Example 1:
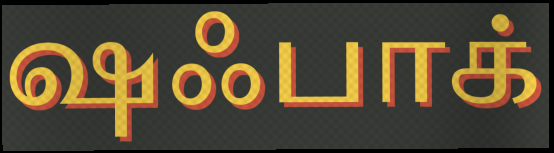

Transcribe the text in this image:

ஷஃபாக்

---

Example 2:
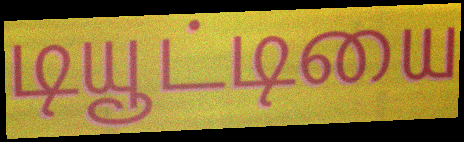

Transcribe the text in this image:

டியூட்டியை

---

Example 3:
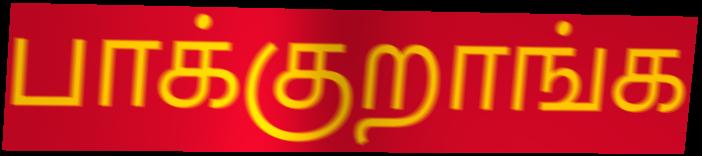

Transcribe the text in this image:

பாக்குறாங்க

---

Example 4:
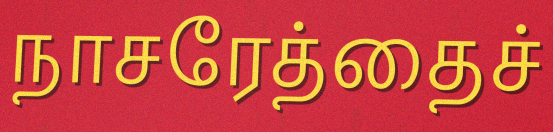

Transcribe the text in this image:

நாசரேத்தைச்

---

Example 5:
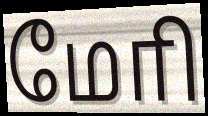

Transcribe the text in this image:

மேரி